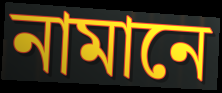
নামানে